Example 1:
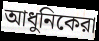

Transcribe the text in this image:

আধুনিকেরা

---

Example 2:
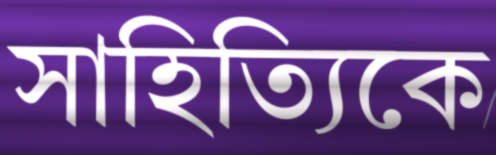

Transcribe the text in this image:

সাহিত্যিকে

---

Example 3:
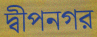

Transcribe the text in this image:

দ্বীপনগর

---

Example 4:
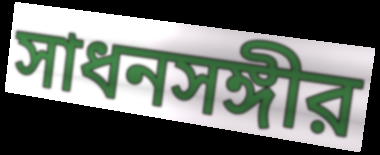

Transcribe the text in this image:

সাধনসঙ্গীর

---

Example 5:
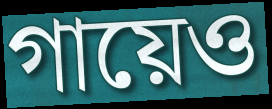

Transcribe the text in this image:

গায়েও